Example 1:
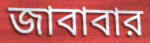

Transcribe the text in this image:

জাবাবার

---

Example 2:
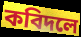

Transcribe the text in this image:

কবিদলে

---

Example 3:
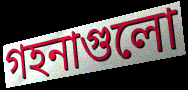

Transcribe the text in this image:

গহনাগুলো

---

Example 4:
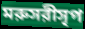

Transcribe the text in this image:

মরুসরীসৃপ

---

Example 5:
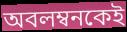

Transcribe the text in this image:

অবলম্বনকেই